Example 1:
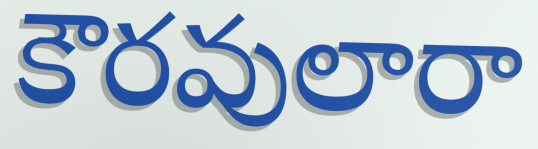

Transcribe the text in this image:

కౌరవులారా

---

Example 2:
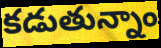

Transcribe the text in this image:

కడుతున్నాం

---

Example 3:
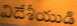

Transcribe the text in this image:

విదేశీయుడి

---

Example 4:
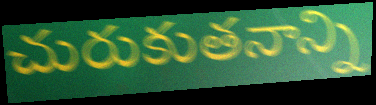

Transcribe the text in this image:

చురుకుతనాన్ని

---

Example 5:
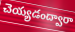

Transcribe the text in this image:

చెయ్యడంద్వారా